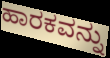
ಹಾರಕವನ್ನು